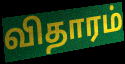
விதாரம்